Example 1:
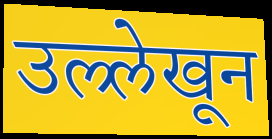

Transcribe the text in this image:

उल्लेखून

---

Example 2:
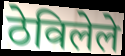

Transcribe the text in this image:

ठेविलेले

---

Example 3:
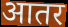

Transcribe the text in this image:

आतर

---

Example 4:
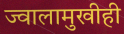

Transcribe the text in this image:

ज्वालामुखीही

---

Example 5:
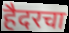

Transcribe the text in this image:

हैदरचा